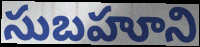
సుబహూని